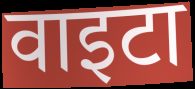
वाइटा